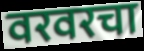
वरवरचा